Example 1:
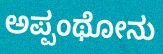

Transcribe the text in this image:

ಅಪ್ಪಂಥೋನು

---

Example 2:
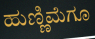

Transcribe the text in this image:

ಹುಣ್ಣಿಮೆಗೂ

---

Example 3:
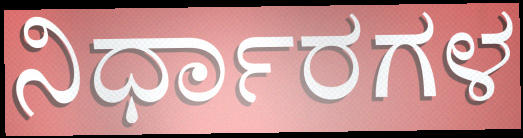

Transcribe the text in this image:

ನಿರ್ಧಾರಗಳ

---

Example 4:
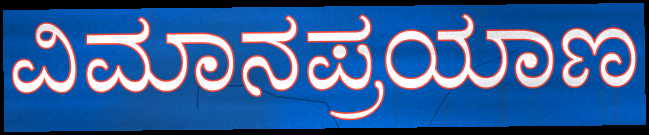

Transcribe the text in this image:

ವಿಮಾನಪ್ರಯಾಣ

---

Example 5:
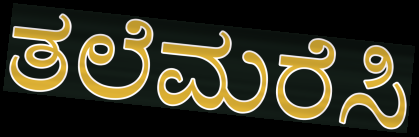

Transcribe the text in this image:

ತಲೆಮರೆಸಿ